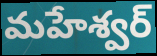
మహేశ్వర్